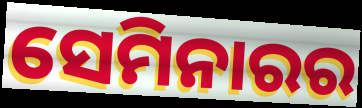
ସେମିନାରର